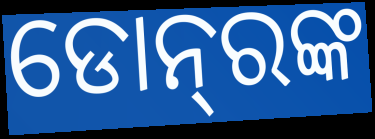
ଡୋନ୍‌ରଙ୍କ